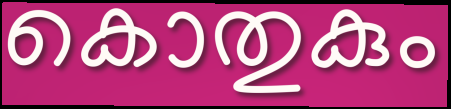
കൊതുകും